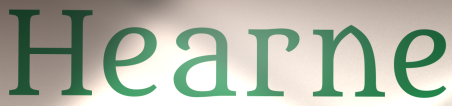
Hearne